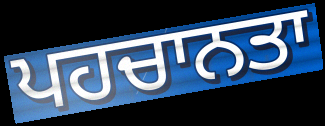
ਪਹਚਾਨਤਾ